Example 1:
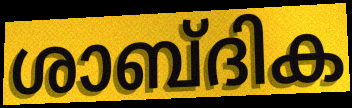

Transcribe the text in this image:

ശാബ്ദിക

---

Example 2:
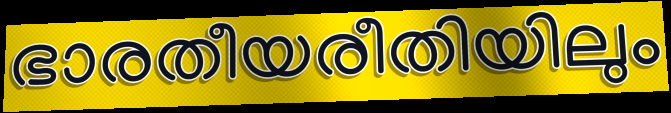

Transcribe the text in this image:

ഭാരതീയരീതിയിലും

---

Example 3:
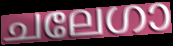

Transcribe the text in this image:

ചലേഗാ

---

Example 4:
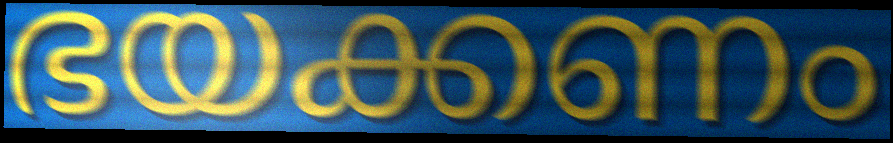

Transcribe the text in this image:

ഭയക്കണം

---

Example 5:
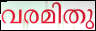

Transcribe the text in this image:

വരമിതു